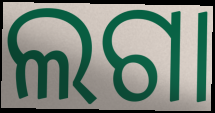
ଲଗା